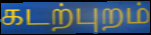
கடற்புறம்